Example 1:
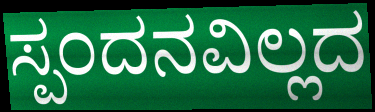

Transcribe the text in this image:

ಸ್ಪಂದನವಿಲ್ಲದ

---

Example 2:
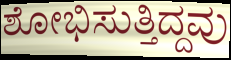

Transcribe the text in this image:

ಶೋಭಿಸುತ್ತಿದ್ದವು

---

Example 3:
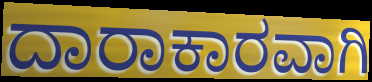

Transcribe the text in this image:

ದಾರಾಕಾರವಾಗಿ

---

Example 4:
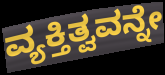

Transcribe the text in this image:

ವ್ಯಕ್ತಿತ್ವವನ್ನೇ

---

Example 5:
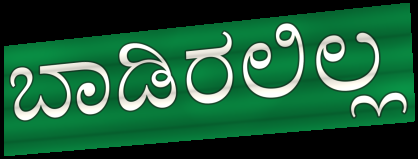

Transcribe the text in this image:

ಬಾಡಿರಲಿಲ್ಲ